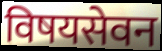
विषयसेवन